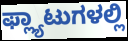
ಫ್ಲ್ಯಾಟುಗಳಲ್ಲಿ